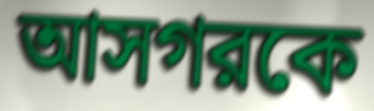
আসগরকে